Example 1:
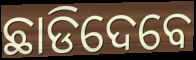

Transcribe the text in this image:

ଛାଡିଦେବେ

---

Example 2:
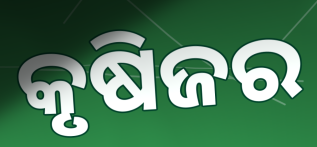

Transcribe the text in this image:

କୃଷିଜର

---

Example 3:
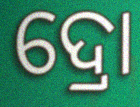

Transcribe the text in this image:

ଦ୍ରୋ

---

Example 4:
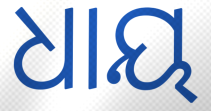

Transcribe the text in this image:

ଧାୟ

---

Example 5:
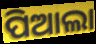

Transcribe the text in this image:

ପିଆଲା